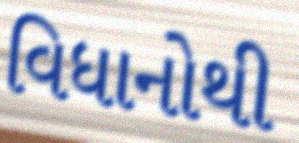
વિધાનોથી